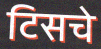
टिसचे